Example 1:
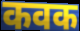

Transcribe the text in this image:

कवक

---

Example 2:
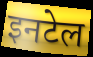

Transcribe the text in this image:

इनटेल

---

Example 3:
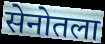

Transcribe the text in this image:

सेनोतला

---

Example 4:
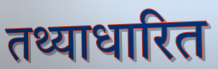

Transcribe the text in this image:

तथ्याधारित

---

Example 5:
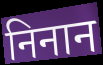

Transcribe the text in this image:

निनान